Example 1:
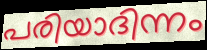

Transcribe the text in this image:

പരിയാദിന്നം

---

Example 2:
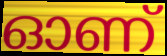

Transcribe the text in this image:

ഓണ്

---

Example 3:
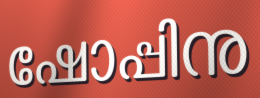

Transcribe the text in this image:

ഷോപ്പിനു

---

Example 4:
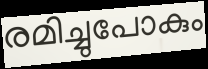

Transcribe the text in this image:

രമിച്ചുപോകും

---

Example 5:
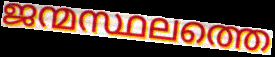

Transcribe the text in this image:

ജന്മസ്ഥലത്തെ